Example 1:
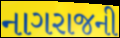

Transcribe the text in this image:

નાગરાજની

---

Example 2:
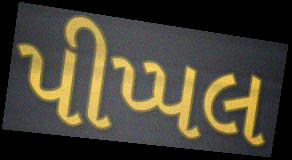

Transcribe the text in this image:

પીપ્પલ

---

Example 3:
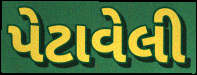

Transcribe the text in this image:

પેટાવેલી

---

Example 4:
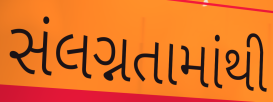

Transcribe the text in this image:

સંલગ્નતામાંથી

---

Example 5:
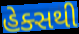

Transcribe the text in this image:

હેક્સથી